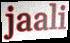
jaali